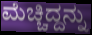
ಮೆಚ್ಚಿದ್ದನ್ನು